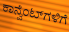
ಕಾನ್ವೆಂಟ್‌ಗಳಿಗೆ